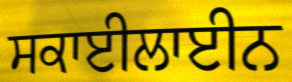
ਸਕਾਈਲਾਈਨ